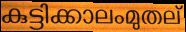
കുട്ടിക്കാലംമുതല്